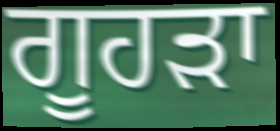
ਗੂਹੜਾ